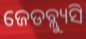
ଜେଡବ୍ଲ୍ୟୁସି